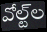
వోల్ట్‌ల